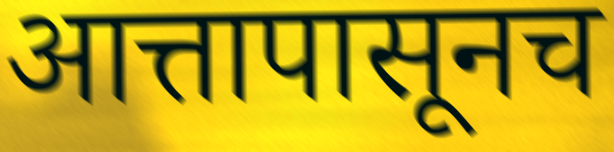
आत्तापासूनच